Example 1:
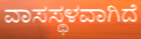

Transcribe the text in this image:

ವಾಸಸ್ಥಳವಾಗಿದೆ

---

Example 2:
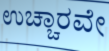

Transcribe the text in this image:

ಉಚ್ಚಾರವೇ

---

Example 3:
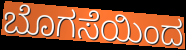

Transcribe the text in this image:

ಬೊಗಸೆಯಿಂದ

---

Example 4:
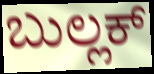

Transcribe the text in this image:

ಬುಲ್ಲಕ್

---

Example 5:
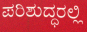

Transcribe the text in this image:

ಪರಿಶುದ್ಧರಲ್ಲಿ